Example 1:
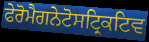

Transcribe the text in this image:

ਫੇਰੋਮੈਗਨੇਟੋਸਟ੍ਰਿਕਟਿਵ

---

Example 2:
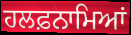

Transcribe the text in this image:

ਹਲਫ਼ਨਾਮਿਆਂ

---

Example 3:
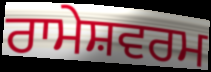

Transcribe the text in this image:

ਰਾਮੇਸ਼ਵਰਮ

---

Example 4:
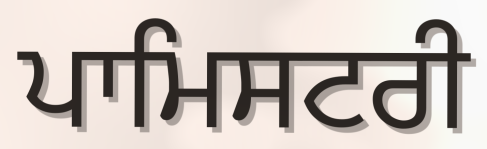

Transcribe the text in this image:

ਪਾਮਿਸਟਰੀ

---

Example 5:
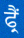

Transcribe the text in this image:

ਫ੍ਰੈਂ